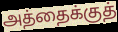
அத்தைக்குத்